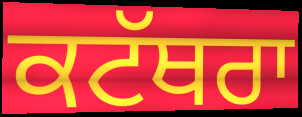
ਕਟੱਥਰਾ